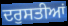
ਦਰੁਸਤੀਆਂ